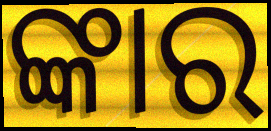
ଙ୍କାର